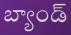
బ్యాండ్